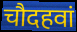
चौदहवां